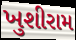
ખુશીરામ